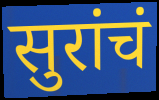
सुरांचं